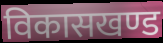
विकासखण्‍ड